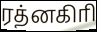
ரத்னகிரி